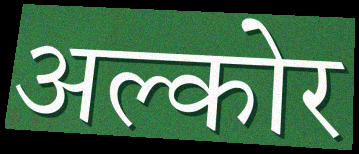
अल्कोर